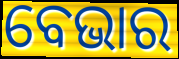
ବେଭାର